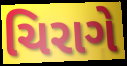
ચિરાગે